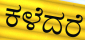
ಕಳೆದರೆ